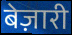
बेज़ारी